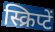
स्क्रिप्टें